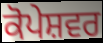
ਕੋਪੇਸ਼ਵਰ